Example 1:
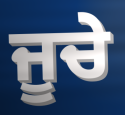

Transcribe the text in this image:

ਜੂਚੇ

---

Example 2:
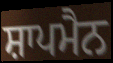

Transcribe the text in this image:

ਸ਼ਾਪਮੈਨ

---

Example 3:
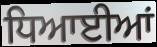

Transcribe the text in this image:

ਧਿਆਈਆਂ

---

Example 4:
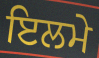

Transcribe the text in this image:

ਇਲਮੇ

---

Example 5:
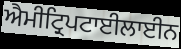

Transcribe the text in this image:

ਐਮੀਟ੍ਰਿਪਟਾਈਲਾਈਨ